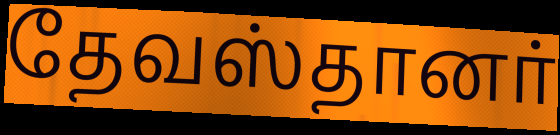
தேவஸ்தானர்